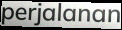
perjalanan